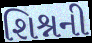
શિશ્નની